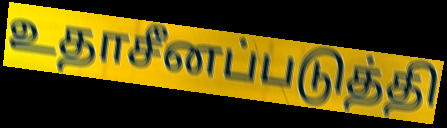
உதாசீனப்படுத்தி